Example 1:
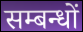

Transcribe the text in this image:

सम्बन्धों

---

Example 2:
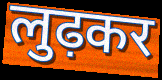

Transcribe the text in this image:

लुढ़कर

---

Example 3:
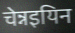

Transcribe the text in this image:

चेन्नइयिन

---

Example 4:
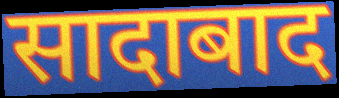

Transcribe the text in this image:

सादाबाद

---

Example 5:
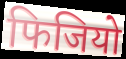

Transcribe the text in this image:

फिजियो